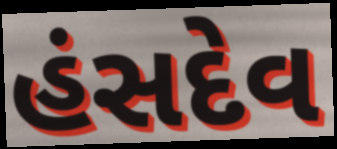
હંસદેવ